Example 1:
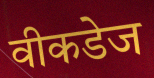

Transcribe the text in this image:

वीकडेज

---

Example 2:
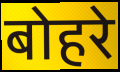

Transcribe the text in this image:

बोहरे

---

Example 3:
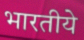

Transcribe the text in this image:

भारतीये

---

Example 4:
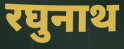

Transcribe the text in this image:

रघुनाथ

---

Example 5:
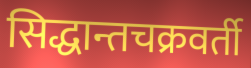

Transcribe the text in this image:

सिद्धान्तचक्रवर्ती